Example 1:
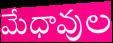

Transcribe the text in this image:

మేధావుల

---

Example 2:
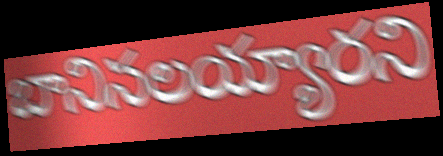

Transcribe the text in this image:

బానిసలయ్యారని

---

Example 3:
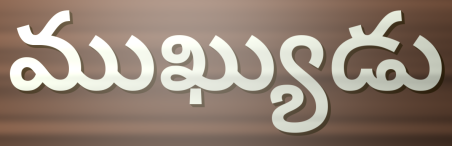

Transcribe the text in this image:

ముఖ్యుడు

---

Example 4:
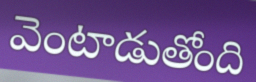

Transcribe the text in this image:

వెంటాడుతోంది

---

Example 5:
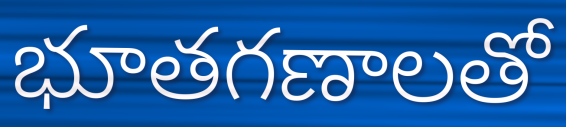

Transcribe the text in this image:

భూతగణాలతో